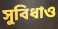
সুবিধাও